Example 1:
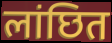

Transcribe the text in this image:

लांछित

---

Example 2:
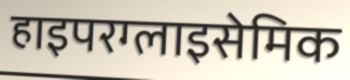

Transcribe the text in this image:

हाइपरग्लाइसेमिक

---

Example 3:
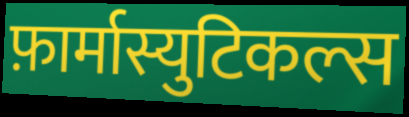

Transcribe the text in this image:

फ़ार्मास्युटिकल्स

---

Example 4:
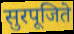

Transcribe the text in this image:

सुरपूजिते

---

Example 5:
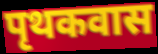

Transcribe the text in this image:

पृथकवास